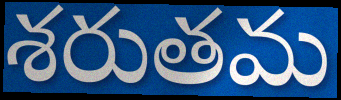
శరుతమ